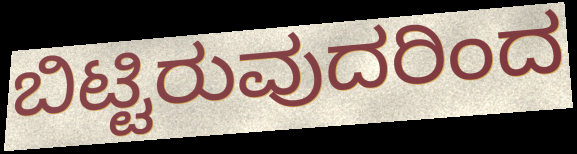
ಬಿಟ್ಟಿರುವುದರಿಂದ